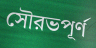
সৌরভপূর্ণ